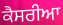
ਕੈਸਰੀਆ